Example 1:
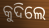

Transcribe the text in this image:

କୁଦିଲେ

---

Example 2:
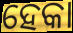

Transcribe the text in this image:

ହେକା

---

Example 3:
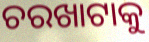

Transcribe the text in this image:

ଚରଖାଟାକୁ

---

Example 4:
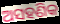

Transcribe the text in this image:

ଅସହଣିକ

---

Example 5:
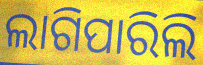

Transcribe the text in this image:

ଲାଗିପାରିଲି